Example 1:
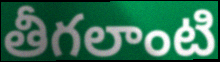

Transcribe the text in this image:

తీగలాంటి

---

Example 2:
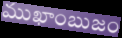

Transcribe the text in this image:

ముఖాంబుజం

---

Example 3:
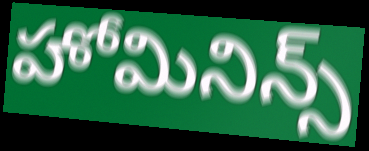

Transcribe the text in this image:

హోమినిన్స్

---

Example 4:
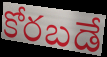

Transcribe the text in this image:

కోరబడే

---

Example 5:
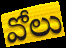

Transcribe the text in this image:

వోలు